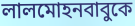
লালমোহনবাবুকে